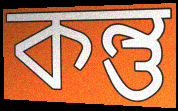
কন্তু